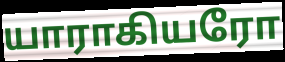
யாராகியரோ